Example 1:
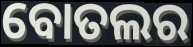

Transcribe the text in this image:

ବୋତଲର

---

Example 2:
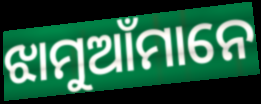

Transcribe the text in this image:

ଝାମୁଆଁମାନେ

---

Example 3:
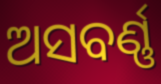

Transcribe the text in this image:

ଅସବର୍ଣ୍ଣ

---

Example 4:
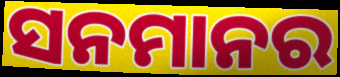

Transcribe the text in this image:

ସନମାନର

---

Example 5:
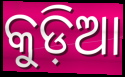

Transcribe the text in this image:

କୁଡ଼ିଆ